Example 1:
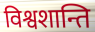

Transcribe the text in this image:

विश्वशान्ति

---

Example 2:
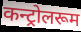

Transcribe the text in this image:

कन्ट्रोलरूम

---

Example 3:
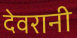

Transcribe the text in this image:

देवरानी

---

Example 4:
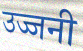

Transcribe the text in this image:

उज्जनी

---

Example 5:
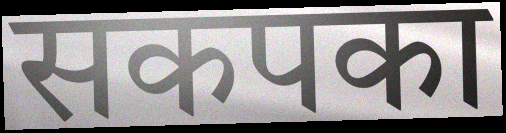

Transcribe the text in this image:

सकपका